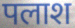
पलाश